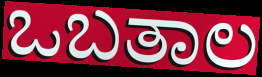
ಒಬತಾಲ